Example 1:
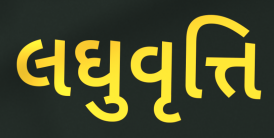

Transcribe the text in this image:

લઘુવૃત્તિ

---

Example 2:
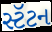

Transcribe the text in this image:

સ્ટૅટન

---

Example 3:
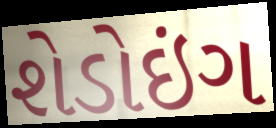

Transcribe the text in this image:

શેડોઇંગ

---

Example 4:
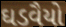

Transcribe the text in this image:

ઘડવૈયો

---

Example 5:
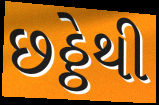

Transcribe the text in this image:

છઠ્ઠેથી